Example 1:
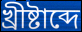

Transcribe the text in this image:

খ্রীষ্টাব্দে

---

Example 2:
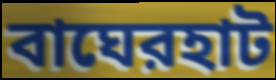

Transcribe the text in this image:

বাঘেরহাট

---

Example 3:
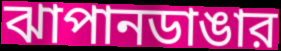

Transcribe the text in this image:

ঝাপানডাঙার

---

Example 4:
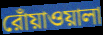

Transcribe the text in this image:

রোঁয়াওয়ালা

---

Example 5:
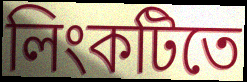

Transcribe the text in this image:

লিংকটিতে